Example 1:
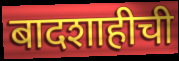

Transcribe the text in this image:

बादशाहीची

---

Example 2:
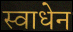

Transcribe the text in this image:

स्वाधेन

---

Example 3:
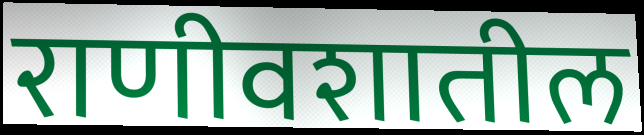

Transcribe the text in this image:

राणीवशातील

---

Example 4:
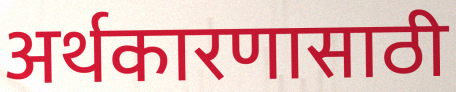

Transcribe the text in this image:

अर्थकारणासाठी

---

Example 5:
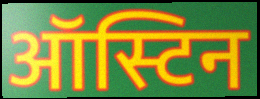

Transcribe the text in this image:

ऑस्टिन